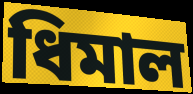
ধিমাল